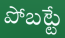
పోబట్టే